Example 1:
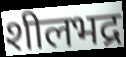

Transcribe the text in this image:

शीलभद्र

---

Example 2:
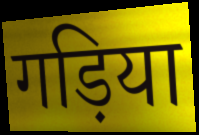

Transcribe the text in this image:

गड़िया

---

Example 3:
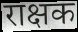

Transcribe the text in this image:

राक्षक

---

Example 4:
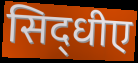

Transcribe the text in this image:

सिद्धीए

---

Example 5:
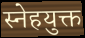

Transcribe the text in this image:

स्नेहयुक्त